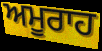
ਅਮੂਰਾਹ